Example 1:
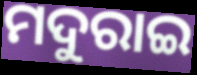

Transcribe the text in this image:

ମଦୁରାଇ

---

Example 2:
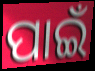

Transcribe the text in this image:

ପାଇଁ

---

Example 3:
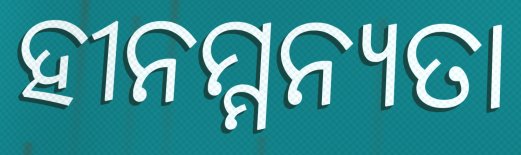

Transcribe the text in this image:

ହୀନମ୍ମନ୍ୟତା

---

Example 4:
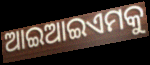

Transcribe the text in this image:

ଆଇଆଇଏମକୁ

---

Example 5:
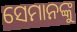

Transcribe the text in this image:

ସେମାନଙ୍କୁ